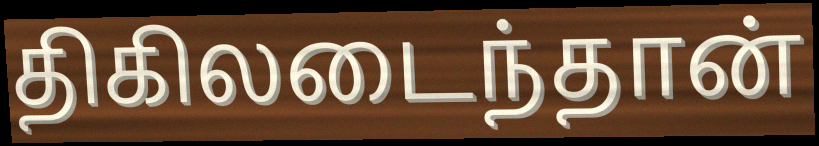
திகிலடைந்தான்